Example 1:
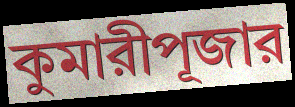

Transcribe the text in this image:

কুমারীপূজার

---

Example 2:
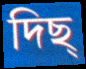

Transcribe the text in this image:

দিছ্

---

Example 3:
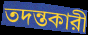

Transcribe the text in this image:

তদন্তকারী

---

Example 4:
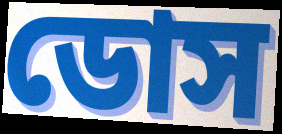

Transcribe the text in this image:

ডোস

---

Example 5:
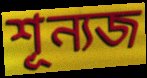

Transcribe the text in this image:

শূন্যজ